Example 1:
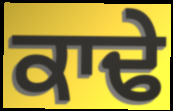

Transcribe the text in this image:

ਕਾਢੇ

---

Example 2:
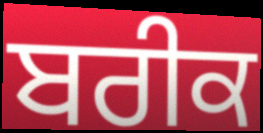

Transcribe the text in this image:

ਬਰੀਕ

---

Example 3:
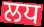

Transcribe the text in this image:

ਲਧ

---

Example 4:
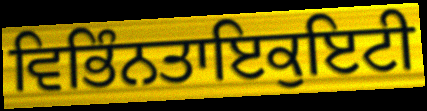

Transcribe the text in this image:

ਵਿਭਿੰਨਤਾਇਕੁਇਟੀ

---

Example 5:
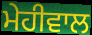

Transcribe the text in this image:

ਮੇਹੀਵਾਲ